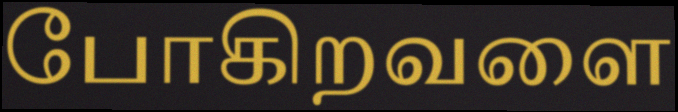
போகிறவளை